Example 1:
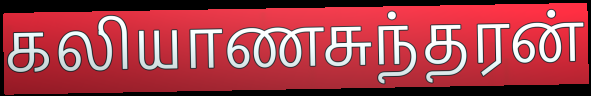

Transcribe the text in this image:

கலியாணசுந்தரன்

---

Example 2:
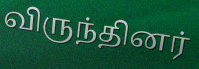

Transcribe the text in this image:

விருந்தினர்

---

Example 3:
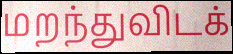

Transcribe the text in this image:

மறந்துவிடக்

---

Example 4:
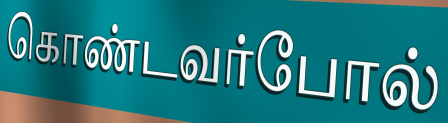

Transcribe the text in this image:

கொண்டவர்போல்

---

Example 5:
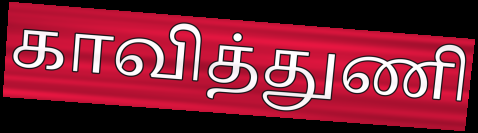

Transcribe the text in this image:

காவித்துணி